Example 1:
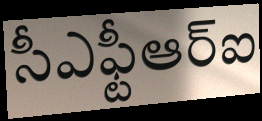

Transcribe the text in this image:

సీఎఫ్టీఆర్ఐ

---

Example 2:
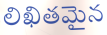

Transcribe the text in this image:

లిఖితమైన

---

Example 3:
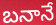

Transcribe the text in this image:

బనానే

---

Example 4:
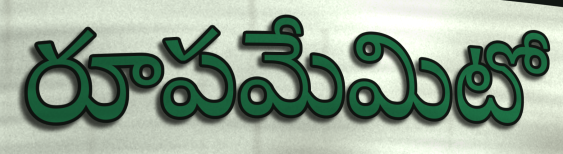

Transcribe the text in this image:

రూపమేమిటో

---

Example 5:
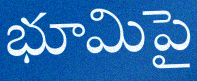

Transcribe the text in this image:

భూమిపై